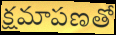
క్షమాపణతో